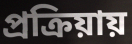
প্রক্রিয়ায়